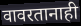
वावरतानाही